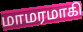
மாமரமாகி